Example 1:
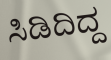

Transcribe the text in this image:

ಸಿಡಿದಿದ್ದ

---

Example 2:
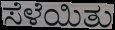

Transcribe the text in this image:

ಸೆಳೆಯಿತು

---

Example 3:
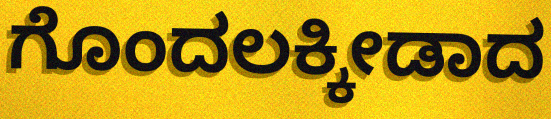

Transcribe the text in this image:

ಗೊಂದಲಕ್ಕೀಡಾದ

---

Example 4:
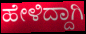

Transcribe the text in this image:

ಹೇಳಿದ್ದಾಗಿ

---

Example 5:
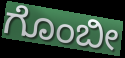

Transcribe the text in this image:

ಗೊಂಬೀ